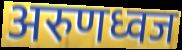
अरुणध्वज